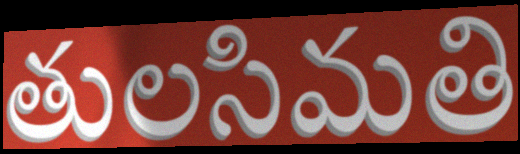
తులసిమతి